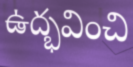
ఉద్భవించి